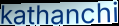
kathanchi